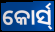
କୋର୍ସ୍